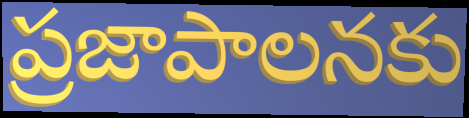
ప్రజాపాలనకు